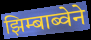
झिम्बाब्वेने